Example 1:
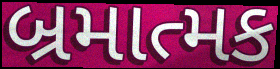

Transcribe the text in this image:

બ્રમાત્મક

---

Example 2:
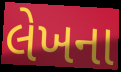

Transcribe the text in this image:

લેખના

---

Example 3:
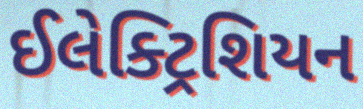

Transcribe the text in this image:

ઈલેક્ટ્રિશિયન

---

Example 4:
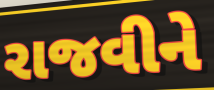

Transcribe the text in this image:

રાજવીને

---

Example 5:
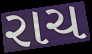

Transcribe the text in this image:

રાચ